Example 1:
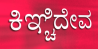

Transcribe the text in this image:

ಕಿಞ್ಚಿದೇವ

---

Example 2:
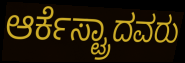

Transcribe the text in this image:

ಆರ್ಕೆಸ್ಟ್ರಾದವರು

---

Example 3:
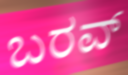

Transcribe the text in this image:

ಬರವ್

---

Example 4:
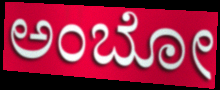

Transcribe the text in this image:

ಅಂಬೋ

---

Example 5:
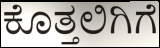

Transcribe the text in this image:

ಕೊತ್ತಲಿಗಿಗೆ